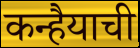
कन्हैयाची